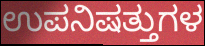
ಉಪನಿಷತ್ತುಗಳ